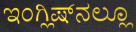
ಇಂಗ್ಲಿಷ್‌ನಲ್ಲೂ